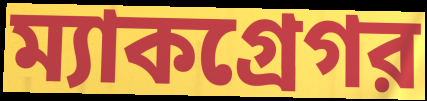
ম্যাকগ্রেগর